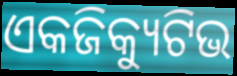
ଏକଜିକ୍ୟୁଟିଭ